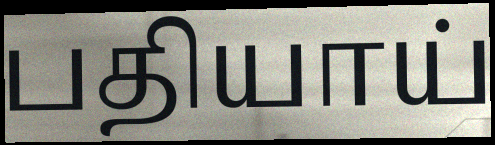
பதியாய்